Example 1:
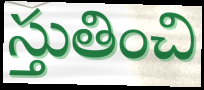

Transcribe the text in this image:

స్తుతించి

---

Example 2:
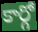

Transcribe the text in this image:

కార్గో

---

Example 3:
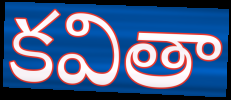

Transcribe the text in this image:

కవితా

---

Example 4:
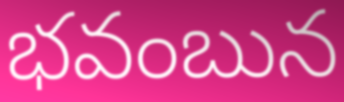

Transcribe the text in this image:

భవంబున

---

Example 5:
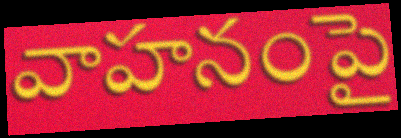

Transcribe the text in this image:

వాహనంపై